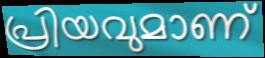
പ്രിയവുമാണ്